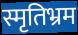
स्मृतिभ्रम